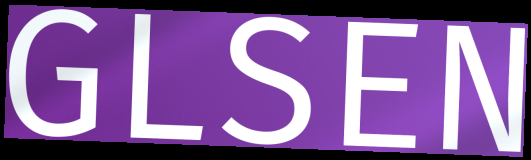
GLSEN